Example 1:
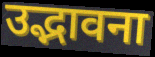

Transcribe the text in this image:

उद्भावना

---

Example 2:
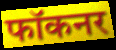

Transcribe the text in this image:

फॉकनर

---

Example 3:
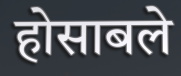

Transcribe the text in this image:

होसाबले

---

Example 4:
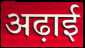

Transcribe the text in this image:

अढ़ाई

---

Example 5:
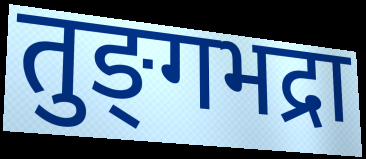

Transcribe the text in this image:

तुङ्गभद्रा